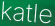
katle